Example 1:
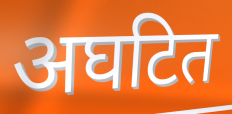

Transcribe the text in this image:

अघटित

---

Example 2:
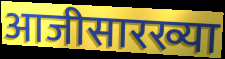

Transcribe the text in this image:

आजीसारख्या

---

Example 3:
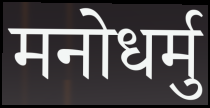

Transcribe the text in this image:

मनोधर्मु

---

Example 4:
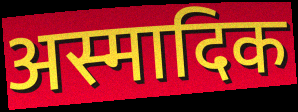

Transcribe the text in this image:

अस्मादिक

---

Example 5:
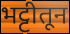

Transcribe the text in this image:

भट्टीतून